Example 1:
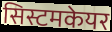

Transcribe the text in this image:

सिस्टमकेयर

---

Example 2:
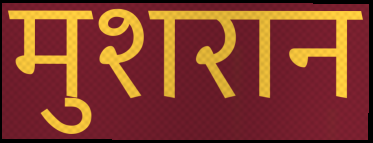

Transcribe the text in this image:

मुशरान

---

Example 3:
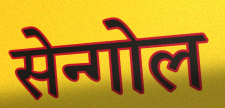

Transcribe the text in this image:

सेन्गोल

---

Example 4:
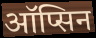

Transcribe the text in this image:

ऑप्सिन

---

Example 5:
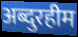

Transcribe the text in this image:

अब्दुरहीम